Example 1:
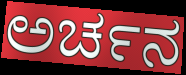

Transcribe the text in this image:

ಅರ್ಚನ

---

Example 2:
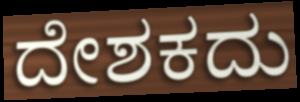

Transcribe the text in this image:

ದೇಶಕದು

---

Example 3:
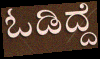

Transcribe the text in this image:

ಓಡಿದ್ದೆ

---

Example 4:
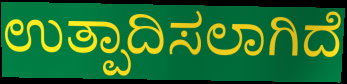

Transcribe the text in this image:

ಉತ್ಪಾದಿಸಲಾಗಿದೆ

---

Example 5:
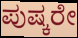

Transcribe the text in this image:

ಪುಷ್ಕರೇ